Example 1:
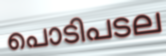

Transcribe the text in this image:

പൊടിപടല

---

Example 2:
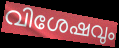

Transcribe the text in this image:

വിശേഷവും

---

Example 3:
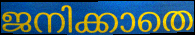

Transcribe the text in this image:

ജനിക്കാതെ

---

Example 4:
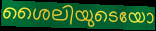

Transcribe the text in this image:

ശൈലിയുടെയോ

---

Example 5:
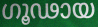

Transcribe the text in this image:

ഗൂഢായ